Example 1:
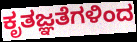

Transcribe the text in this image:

ಕೃತಜ್ಞತೆಗಳಿಂದ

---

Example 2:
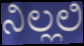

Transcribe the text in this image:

ನಿಲ್ಲಲಿ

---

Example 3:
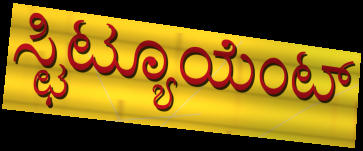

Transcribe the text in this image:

ಸ್ಟಿಟ್ಯೂಯೆಂಟ್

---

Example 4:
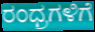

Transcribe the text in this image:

ರಂಧ್ರಗಳಿಗೆ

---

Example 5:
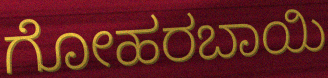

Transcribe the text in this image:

ಗೋಹರಬಾಯಿ